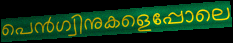
പെൻഗ്വിനുകളെപ്പോലെ